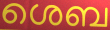
ശെബ